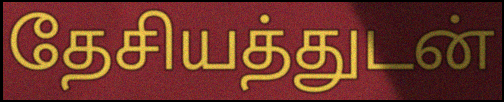
தேசியத்துடன்